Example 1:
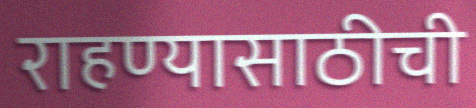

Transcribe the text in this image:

राहण्यासाठीची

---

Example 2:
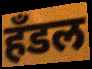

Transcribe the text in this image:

हॅंडल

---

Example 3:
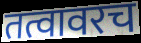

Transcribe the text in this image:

तत्वावरच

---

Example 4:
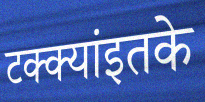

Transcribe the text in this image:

टक्क्यांइतके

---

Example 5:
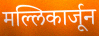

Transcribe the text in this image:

मल्लिकार्जून